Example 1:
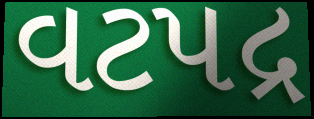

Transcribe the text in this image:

વટપદ્ર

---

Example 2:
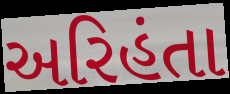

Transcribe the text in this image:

અરિહંતા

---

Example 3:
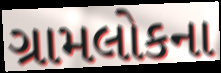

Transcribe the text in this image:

ગ્રામલોકના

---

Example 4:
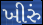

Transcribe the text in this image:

ખીરું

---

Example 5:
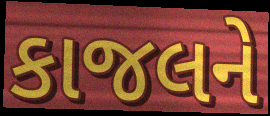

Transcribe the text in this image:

કાજલને